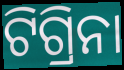
ଟିଗ୍ରିନା